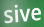
sive